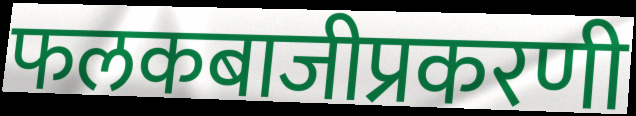
फलकबाजीप्रकरणी